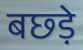
बछ्ड़े